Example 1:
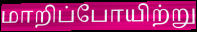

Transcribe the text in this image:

மாறிப்போயிற்று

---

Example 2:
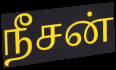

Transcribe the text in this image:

நீசன்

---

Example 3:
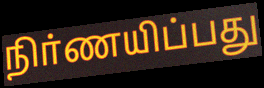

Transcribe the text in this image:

நிர்ணயிப்பது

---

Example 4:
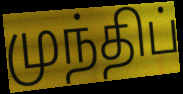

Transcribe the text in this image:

முந்திப்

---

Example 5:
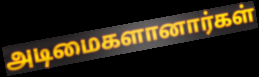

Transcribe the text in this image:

அடிமைகளானார்கள்